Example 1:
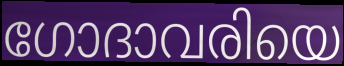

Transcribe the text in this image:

ഗോദാവരിയെ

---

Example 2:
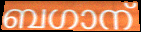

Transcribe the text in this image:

ബഗാന്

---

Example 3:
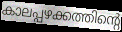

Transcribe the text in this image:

കാലപ്പഴക്കത്തിന്റെ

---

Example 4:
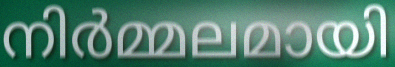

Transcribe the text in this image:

നിർമ്മലമായി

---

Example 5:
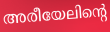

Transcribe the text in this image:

അരീയേലിന്റെ